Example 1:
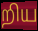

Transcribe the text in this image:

றிய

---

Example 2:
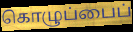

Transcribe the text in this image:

கொழுப்பைப்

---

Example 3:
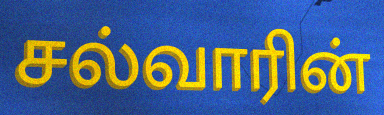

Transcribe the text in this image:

சல்வாரின்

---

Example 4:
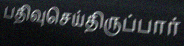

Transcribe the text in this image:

பதிவுசெய்திருப்பார்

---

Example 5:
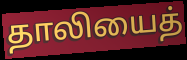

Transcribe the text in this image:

தாலியைத்